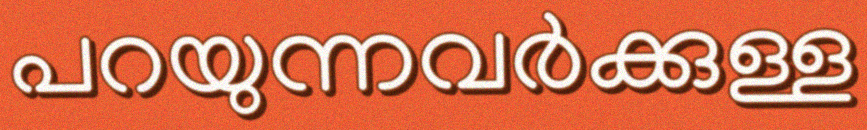
പറയുന്നവർക്കുള്ള